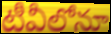
టీవీలోనూ